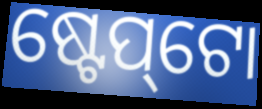
ଷ୍ଟେପ୍‌ଟୋ